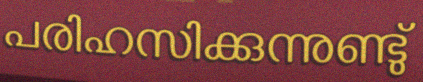
പരിഹസിക്കുന്നുണ്ടു്